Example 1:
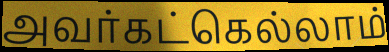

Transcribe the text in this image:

அவர்கட்கெல்லாம்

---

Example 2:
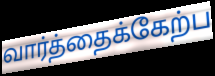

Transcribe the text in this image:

வார்த்தைக்கேற்ப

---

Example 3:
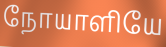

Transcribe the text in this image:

நோயாளியே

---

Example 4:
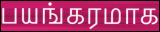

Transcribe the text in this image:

பயங்கரமாக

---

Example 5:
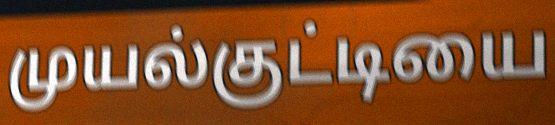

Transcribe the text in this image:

முயல்குட்டியை